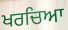
ਖਰਚਿਆ